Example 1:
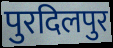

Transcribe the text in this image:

पुरदिलपुर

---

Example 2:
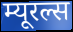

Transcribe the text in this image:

म्यूरल्स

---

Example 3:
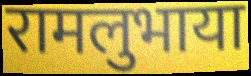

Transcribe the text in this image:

रामलुभाया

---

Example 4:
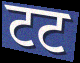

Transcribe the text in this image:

टट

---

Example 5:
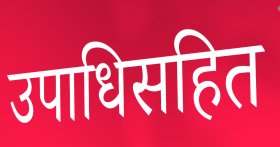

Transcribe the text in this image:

उपाधिसहित